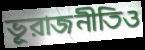
ভূরাজনীতিও